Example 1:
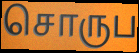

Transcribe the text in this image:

சொருப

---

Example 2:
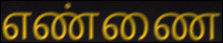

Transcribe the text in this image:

எண்ணை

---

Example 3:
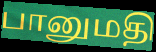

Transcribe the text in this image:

பானுமதி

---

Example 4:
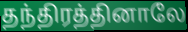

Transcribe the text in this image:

தந்திரத்தினாலே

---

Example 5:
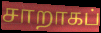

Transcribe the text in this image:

சாறாகப்